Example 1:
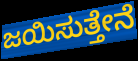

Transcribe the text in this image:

ಜಯಿಸುತ್ತೇನೆ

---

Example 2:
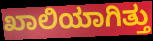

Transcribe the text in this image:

ಖಾಲಿಯಾಗಿತ್ತು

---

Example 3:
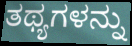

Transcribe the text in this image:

ತಥ್ಯಗಳನ್ನು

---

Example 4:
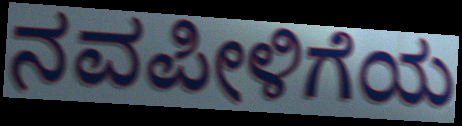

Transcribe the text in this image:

ನವಪೀಳಿಗೆಯ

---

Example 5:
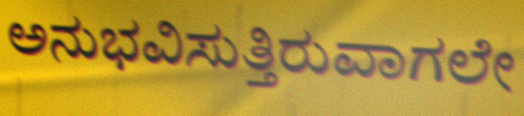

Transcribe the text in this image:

ಅನುಭವಿಸುತ್ತಿರುವಾಗಲೇ